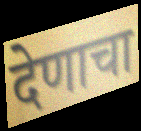
देणाचा